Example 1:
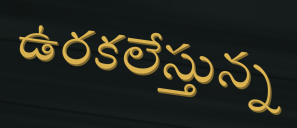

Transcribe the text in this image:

ఉరకలేస్తున్న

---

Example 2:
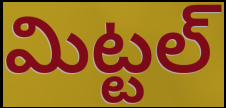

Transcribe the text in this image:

మిట్టల్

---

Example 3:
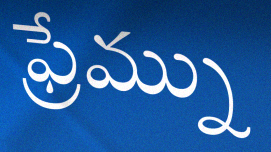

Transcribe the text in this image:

ఫ్రేమ్ను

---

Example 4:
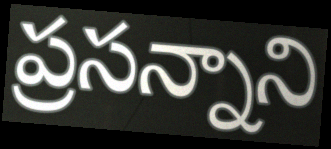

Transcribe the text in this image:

ప్రసన్నాని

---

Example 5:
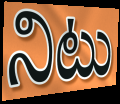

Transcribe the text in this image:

నిటు